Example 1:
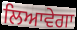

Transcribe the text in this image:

ਲਿਆਵੇਗਾ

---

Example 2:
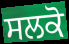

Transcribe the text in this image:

ਸਲਕੋ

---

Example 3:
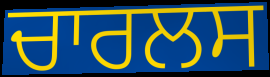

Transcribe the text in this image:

ਚਾਰਲਸ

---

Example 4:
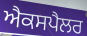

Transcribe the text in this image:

ਐਕਸਪੈਲਰ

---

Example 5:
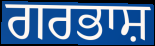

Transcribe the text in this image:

ਗਰਭਾਸ਼